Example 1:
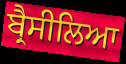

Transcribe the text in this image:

ਬ੍ਰੈਸੀਲਿਆ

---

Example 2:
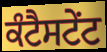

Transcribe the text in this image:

ਕੰਟੈਸਟੇਂਟ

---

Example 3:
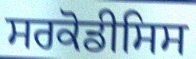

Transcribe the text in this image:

ਸਰਕੋਡੀਸਿਸ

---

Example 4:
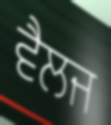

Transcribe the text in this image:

ਵੈਲਜ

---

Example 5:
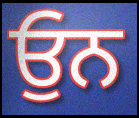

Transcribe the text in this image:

ਓੁਨ